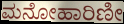
ಮನೋಹಾರಿಣೀ